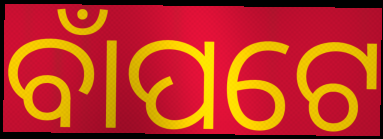
ବାଁପଟେ